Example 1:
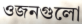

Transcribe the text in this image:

ওজনগুলো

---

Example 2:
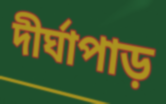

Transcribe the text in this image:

দীর্ঘাপাড়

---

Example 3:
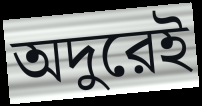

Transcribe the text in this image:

অদুরেই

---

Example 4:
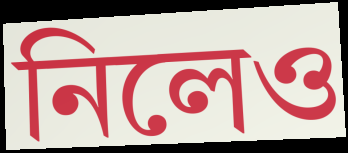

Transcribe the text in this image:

নিলেও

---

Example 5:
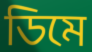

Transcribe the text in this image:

ডিমে